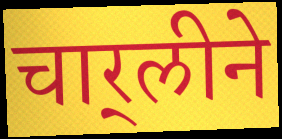
चार्लीने